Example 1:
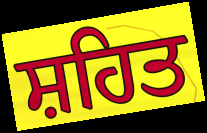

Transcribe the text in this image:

ਸ਼ਹਿਤ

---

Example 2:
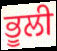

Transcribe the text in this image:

ਭੂਲੀ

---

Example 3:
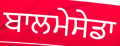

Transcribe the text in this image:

ਬਾਲਮੇਸੇਡਾ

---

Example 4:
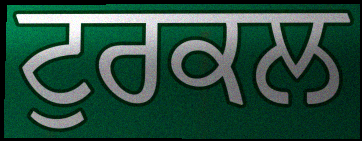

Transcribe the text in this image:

ਟੁਰਕਲ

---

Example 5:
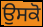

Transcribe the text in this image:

ਉਸਕੋ